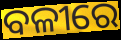
ବଳୀରେ